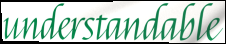
understandable